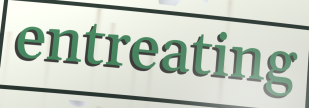
entreating